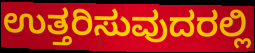
ಉತ್ತರಿಸುವುದರಲ್ಲಿ